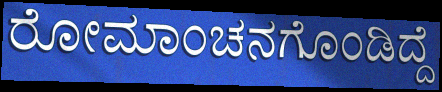
ರೋಮಾಂಚನಗೊಂಡಿದ್ದೆ